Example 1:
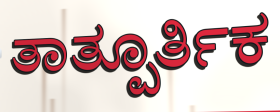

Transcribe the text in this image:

ತಾತ್ಪೂರ್ತಿಕ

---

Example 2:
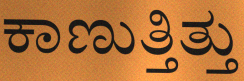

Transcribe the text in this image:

ಕಾಣುತ್ತಿತ್ತು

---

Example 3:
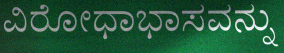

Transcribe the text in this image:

ವಿರೋಧಾಭಾಸವನ್ನು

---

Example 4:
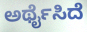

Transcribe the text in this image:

ಅರ್ಥೈಸಿದೆ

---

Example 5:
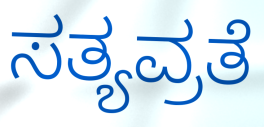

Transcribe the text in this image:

ಸತ್ಯವ್ರತೆ